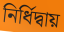
নির্ধিদ্বায়